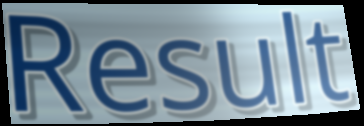
Result